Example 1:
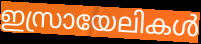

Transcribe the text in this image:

ഇസ്രായേലികൾ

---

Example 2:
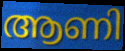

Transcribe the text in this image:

ആണി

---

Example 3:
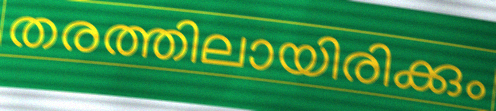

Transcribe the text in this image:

തരത്തിലായിരിക്കും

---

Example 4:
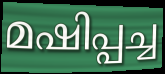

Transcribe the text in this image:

മഷിപ്പച്ച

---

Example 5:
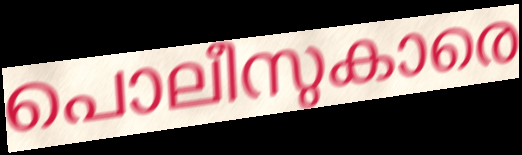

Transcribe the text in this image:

പൊലീസുകാരെ